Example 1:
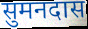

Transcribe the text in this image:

सुमनदास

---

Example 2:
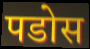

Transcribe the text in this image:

पडोस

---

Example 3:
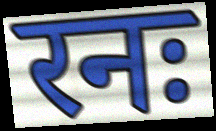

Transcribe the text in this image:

रनः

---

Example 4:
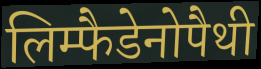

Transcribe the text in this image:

लिम्फैडेनोपैथी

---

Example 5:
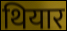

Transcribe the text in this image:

थियार